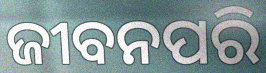
ଜୀବନପରି